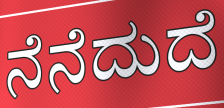
ನೆನೆದುದೆ